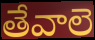
తేవాలె